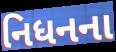
નિધનના